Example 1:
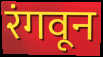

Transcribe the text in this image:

रंगवून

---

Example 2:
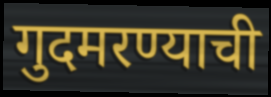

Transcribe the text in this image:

गुदमरण्याची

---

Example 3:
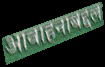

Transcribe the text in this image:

आवाहनाबद्दल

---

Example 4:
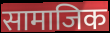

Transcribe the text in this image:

सामाजिक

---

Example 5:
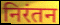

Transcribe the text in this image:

निरंतन